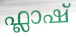
ഫ്ലാഷ്